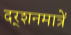
दर्शनमात्रें